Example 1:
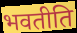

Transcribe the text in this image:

भवतीति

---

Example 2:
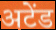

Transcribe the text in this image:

अटेंड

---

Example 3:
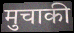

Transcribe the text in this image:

मुचाकी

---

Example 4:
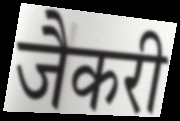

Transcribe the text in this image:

जैकरी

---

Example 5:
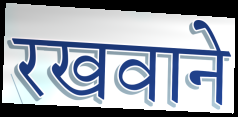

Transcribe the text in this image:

रखवाने